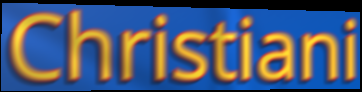
Christiani